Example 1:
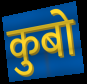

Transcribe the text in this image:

कुबो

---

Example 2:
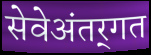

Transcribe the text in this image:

सेवेअंतर्गत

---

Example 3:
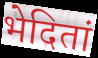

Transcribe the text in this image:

भेदितां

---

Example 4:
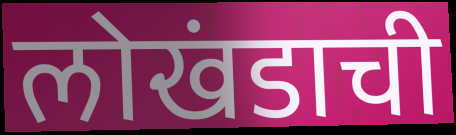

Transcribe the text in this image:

लोखंडाची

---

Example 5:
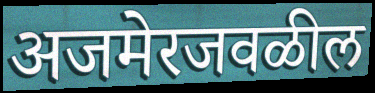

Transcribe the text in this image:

अजमेरजवळील